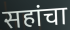
सहांचा